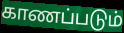
காணப்படும்